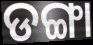
ଡଙ୍ଗା